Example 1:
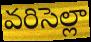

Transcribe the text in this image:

వరిసెల్లా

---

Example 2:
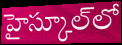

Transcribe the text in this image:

హైస్కూల్‌లో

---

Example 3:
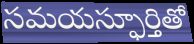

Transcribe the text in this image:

సమయస్ఫూర్తితో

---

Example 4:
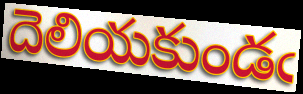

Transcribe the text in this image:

దెలియకుండఁ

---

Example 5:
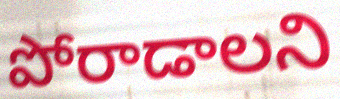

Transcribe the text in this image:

పోరాడాలని